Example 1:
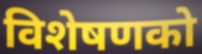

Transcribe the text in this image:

विशेषणको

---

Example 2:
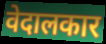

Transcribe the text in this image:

वेदालकार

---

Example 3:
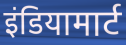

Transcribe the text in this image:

इंडियामार्ट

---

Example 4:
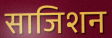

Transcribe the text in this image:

साजिशन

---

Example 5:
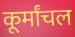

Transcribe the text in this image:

कूर्मांचल